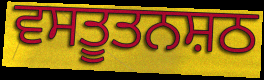
ਵਸਤੂਤਨਸ਼ਠ